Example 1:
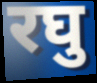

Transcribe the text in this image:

रघु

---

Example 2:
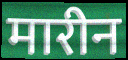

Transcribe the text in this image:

मारीन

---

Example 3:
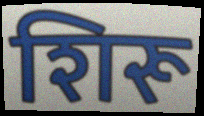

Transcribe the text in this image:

शिरू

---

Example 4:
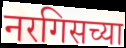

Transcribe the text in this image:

नरगिसच्या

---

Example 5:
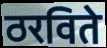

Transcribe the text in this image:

ठरविते